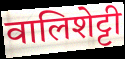
वालिशेट्टी